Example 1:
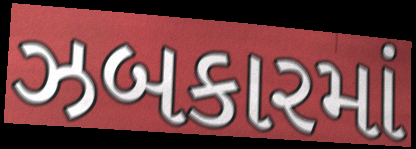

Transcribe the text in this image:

ઝબકારમાં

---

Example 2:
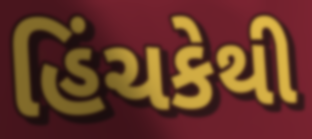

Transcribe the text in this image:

હિંચકેથી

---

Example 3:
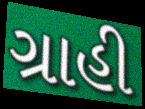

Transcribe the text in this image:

ગ્રાહી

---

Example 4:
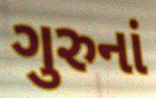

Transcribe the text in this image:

ગુરુનાં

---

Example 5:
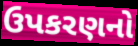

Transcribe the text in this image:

ઉપકરણનો